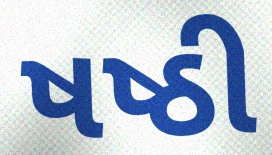
ષષ્ઠી